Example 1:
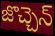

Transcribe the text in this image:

జొచ్చెన్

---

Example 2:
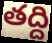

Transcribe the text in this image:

తద్ది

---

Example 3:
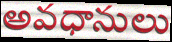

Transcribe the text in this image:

అవధానులు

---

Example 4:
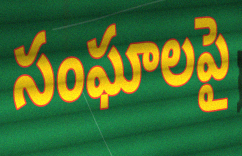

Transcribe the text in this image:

సంఘాలపై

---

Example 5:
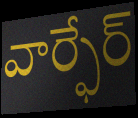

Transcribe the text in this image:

వార్ఫేర్